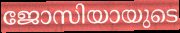
ജോസിയായുടെ